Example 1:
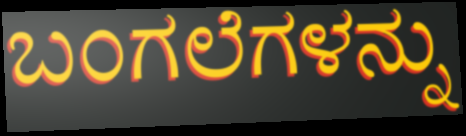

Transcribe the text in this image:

ಬಂಗಲೆಗಳನ್ನು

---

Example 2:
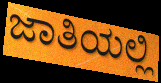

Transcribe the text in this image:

ಜಾತಿಯಲ್ಲಿ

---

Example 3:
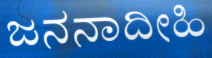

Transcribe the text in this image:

ಜನನಾದೀಹಿ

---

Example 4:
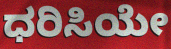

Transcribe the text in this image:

ಧರಿಸಿಯೇ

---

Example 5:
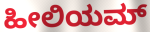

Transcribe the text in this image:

ಹೀಲಿಯಮ್